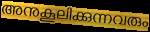
അനുകൂലിക്കുന്നവരും